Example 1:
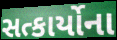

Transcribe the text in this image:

સત્કાર્યોના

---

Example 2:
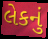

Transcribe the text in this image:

લેકનું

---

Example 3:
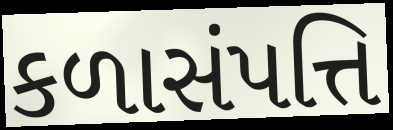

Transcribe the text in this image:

કળાસંપત્તિ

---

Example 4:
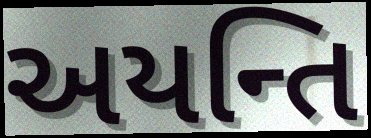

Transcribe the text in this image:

અયન્તિ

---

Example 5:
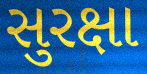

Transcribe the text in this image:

સુરક્ષા